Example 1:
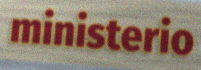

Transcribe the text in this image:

ministerio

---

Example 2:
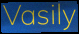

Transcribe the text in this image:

Vasily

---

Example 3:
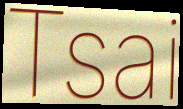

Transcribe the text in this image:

Tsai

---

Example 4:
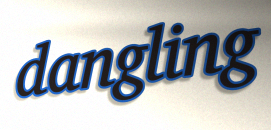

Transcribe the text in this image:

dangling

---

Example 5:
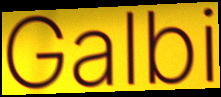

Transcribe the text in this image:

Galbi